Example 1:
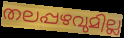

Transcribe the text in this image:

തലപ്പഴവുമില്ല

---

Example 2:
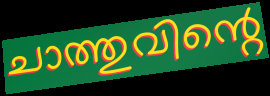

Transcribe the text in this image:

ചാത്തുവിന്റെ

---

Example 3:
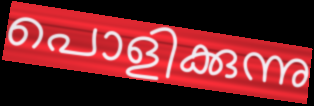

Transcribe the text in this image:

പൊളിക്കുന്നു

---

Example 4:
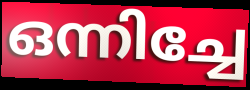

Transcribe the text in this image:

ഒന്നിച്ചേ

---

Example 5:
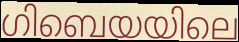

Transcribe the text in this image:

ഗിബെയയിലെ